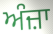
ਅੰਜ਼ਾ